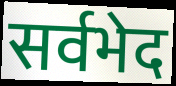
सर्वभेद